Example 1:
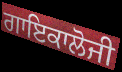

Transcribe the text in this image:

ਗਾਇਕਾਲੋਜੀ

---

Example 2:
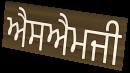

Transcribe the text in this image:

ਐਸਐਮਜੀ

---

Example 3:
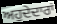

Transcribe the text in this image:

ਅਹੁਦੇਦਾਰਾਂ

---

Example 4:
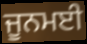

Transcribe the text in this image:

ਜੂਨਮਈ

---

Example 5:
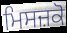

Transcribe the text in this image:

ਮਿਸਜ਼ਕੋ